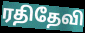
ரதிதேவி